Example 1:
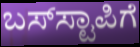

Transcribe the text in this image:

ಬಸ್‌ಸ್ಟಾಪಿಗೆ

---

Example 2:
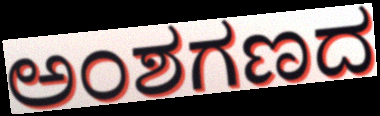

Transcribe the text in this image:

ಅಂಶಗಣದ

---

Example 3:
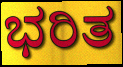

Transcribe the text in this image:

ಭರಿತ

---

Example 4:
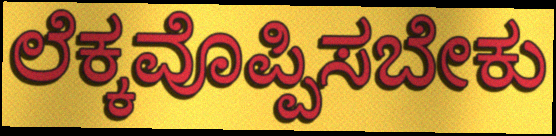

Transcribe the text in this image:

ಲೆಕ್ಕವೊಪ್ಪಿಸಬೇಕು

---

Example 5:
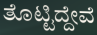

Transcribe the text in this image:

ತೊಟ್ಟಿದ್ದೇವೆ